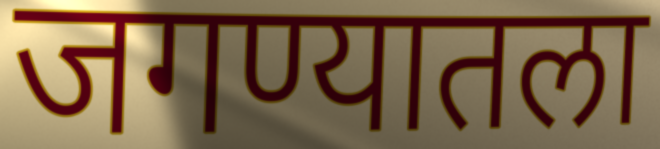
जगण्यातला